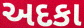
અદકા